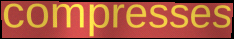
compresses